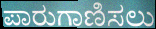
ಪಾರುಗಾಣಿಸಲು